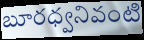
బూరధ్వనివంటి